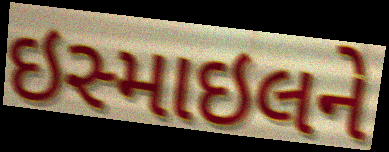
ઇસ્માઇલને